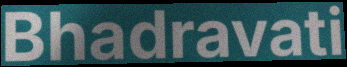
Bhadravati